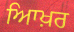
ਆਿਖ਼ਰ